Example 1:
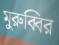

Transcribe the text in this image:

মুরুব্বির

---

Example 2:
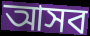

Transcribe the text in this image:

আসব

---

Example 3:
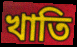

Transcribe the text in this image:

খাতি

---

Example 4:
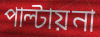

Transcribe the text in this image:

পাল্টায়না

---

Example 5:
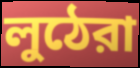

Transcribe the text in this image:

লুঠেরা